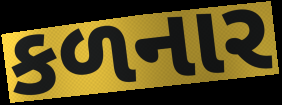
કળનાર